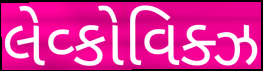
લેવ્કોવિક્ઝ